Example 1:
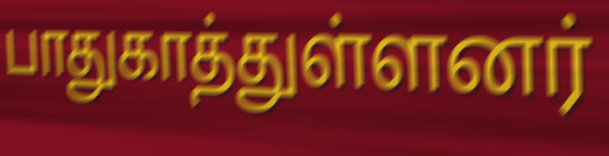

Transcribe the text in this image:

பாதுகாத்துள்ளனர்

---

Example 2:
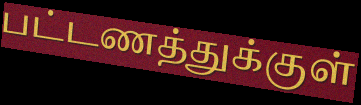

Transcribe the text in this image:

பட்டணத்துக்குள்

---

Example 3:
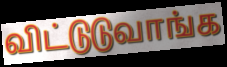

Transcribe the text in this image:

விட்டுடுவாங்க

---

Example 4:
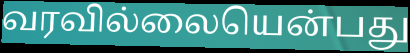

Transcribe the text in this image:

வரவில்லையென்பது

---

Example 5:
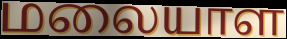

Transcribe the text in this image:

மலையாள